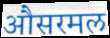
औसरमल